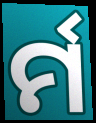
ର୍ମ